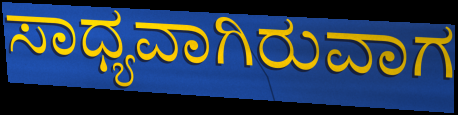
ಸಾಧ್ಯವಾಗಿರುವಾಗ